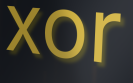
xor